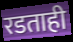
रडताही